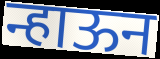
न्हाऊन